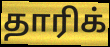
தாரிக்